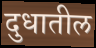
दुधातील